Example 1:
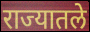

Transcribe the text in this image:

राज्यातले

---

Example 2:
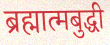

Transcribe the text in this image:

ब्रह्मात्मबुद्धी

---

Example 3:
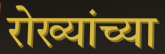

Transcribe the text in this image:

रोख्यांच्या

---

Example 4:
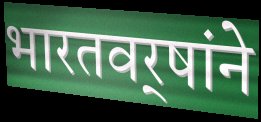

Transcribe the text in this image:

भारतवर्षांने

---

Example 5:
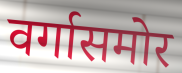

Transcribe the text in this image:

वर्गासमोर